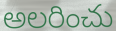
అలరించు